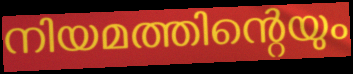
നിയമത്തിന്റെയും